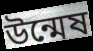
উন্মেষ